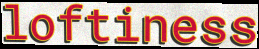
loftiness